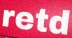
retd